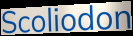
Scoliodon